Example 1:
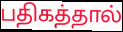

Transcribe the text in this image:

பதிகத்தால்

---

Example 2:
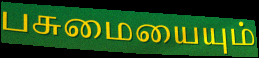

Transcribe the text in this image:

பசுமையையும்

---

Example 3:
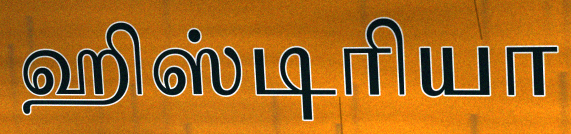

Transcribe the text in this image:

ஹிஸ்டிரியா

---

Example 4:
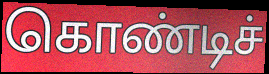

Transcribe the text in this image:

கொண்டிச்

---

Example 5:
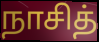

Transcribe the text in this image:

நாசித்